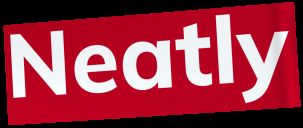
Neatly